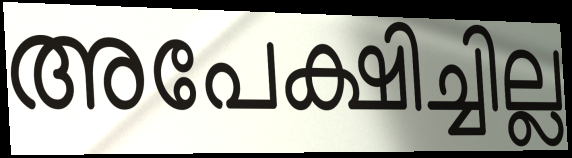
അപേക്ഷിച്ചില്ല